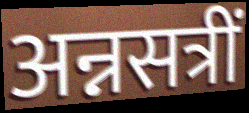
अन्नसत्रीं